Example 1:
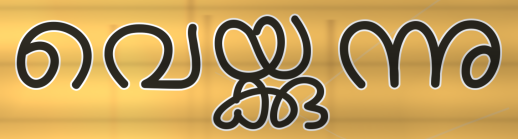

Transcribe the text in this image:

വെയ്ക്കുന്നു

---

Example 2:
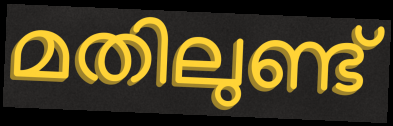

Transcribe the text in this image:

മതിലുണ്ട്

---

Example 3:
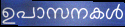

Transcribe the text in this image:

ഉപാസനകൾ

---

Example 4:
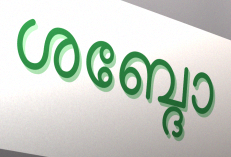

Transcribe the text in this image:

ശബ്ദോ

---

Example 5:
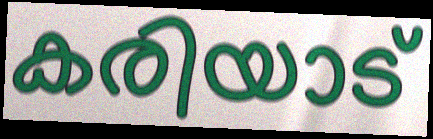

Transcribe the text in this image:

കരിയാട്